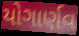
યોગાર્ણવ